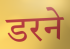
डरने